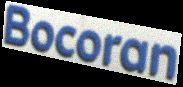
Bocoran